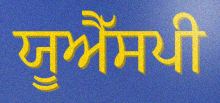
ਯੂਐੱਸਪੀ